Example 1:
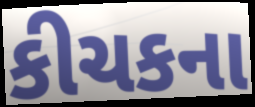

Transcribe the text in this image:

કીચકના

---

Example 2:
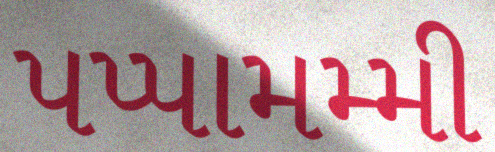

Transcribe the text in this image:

પપ્પામમ્મી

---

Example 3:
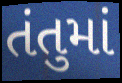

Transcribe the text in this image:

તંતુમાં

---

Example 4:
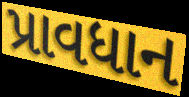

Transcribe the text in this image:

પ્રાવધાન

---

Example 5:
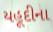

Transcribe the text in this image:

યહૂદીના